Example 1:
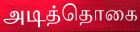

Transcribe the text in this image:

அடித்தொகை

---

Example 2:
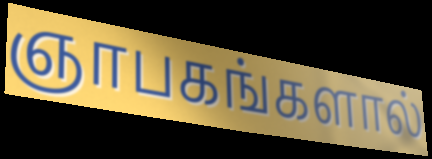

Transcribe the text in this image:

ஞாபகங்களால்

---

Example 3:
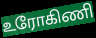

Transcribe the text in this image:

உரோகிணி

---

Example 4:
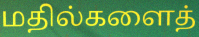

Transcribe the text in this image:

மதில்களைத்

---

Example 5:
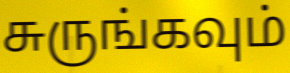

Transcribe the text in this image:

சுருங்கவும்